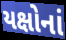
યક્ષોનાં